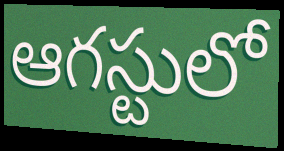
ఆగస్టులో